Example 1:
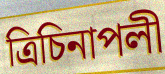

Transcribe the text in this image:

ত্রিচিনাপলী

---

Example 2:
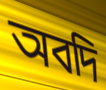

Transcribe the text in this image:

অবদি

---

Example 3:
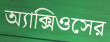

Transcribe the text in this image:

অ্যাক্সিওসের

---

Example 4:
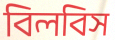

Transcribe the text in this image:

বিলবিস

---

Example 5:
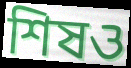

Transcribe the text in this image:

শিষও